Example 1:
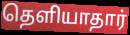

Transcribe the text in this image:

தெளியாதார்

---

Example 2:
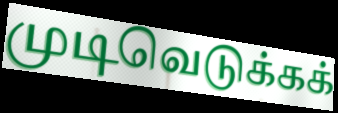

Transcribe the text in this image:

முடிவெடுக்கக்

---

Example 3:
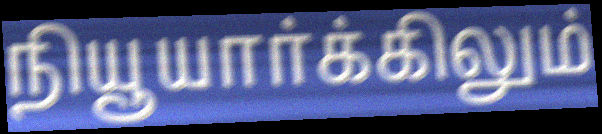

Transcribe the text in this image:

நியூயார்க்கிலும்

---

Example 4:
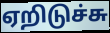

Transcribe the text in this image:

ஏறிடுச்சு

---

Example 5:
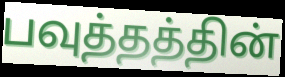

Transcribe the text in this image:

பவுத்தத்தின்